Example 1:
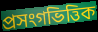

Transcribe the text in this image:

প্ৰসংগভিত্তিক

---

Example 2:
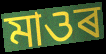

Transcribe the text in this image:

মাওৰ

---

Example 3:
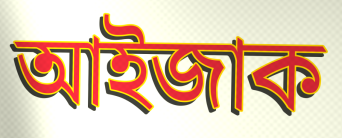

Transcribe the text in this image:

আইজাক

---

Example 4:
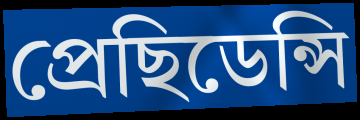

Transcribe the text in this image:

প্ৰেছিডেন্সি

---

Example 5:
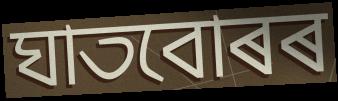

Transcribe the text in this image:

ঘাতবোৰৰ